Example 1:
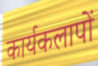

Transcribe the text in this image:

कार्यकलापों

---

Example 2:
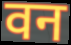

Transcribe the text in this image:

वन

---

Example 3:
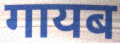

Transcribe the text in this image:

गायब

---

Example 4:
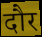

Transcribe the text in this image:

दौर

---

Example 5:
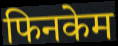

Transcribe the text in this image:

फिनकेम